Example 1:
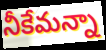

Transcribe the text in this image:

నీకేమన్నా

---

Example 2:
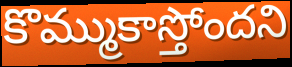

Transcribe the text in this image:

కొమ్ముకాస్తోందని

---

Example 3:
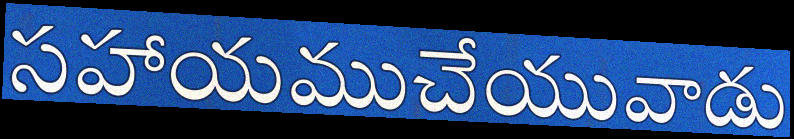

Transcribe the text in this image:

సహాయముచేయువాడు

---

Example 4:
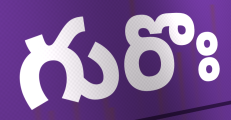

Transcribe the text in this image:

గురొః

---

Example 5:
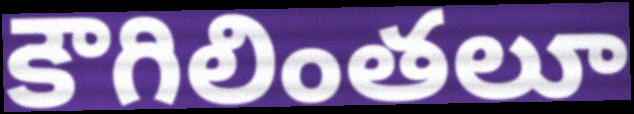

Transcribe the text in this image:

కౌగిలింతలూ